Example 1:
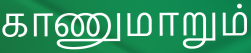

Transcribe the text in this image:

காணுமாறும்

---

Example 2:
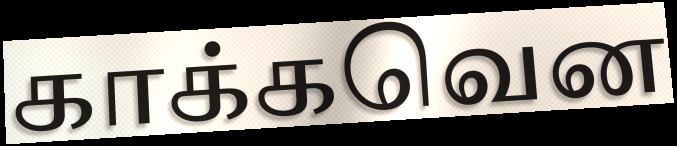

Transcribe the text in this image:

காக்கவென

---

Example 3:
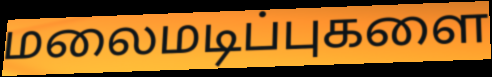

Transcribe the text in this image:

மலைமடிப்புகளை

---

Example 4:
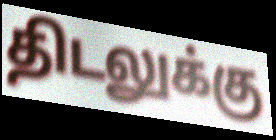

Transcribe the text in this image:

திடலுக்கு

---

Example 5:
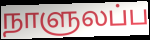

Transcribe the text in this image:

நாளுலப்ப